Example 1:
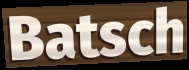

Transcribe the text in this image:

Batsch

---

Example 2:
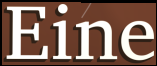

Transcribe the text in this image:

Eine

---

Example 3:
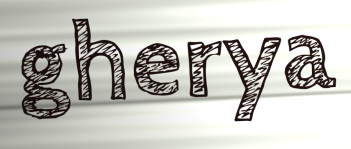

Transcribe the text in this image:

gherya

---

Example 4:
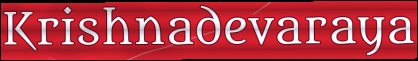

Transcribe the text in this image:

Krishnadevaraya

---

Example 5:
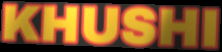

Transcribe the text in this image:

KHUSHI